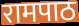
रामपाठ